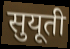
सुयूती